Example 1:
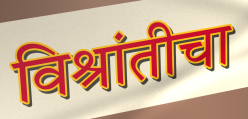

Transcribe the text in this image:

विश्रांतीचा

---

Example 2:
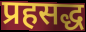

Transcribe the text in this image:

प्रहसद्ध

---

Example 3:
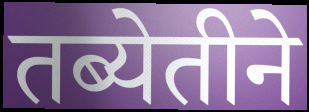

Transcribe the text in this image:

तब्येतीने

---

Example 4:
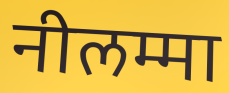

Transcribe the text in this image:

नीलम्मा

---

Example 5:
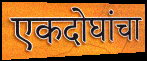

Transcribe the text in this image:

एकदोघांचा